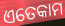
ଏତେକାମ